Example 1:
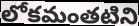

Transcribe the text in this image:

లోకమంతటిని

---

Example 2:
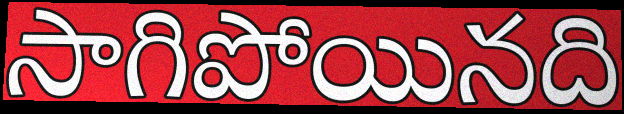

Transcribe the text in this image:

సాగిపోయినది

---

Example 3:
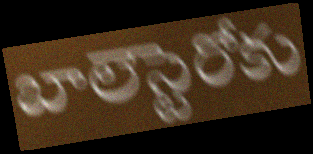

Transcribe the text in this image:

బాలెస్టెరోకు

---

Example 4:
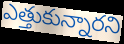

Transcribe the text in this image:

ఎత్తుకున్నారని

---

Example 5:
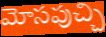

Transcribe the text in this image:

మోసపుచ్చి